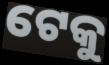
ଟେକୁ